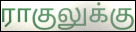
ராகுலுக்கு